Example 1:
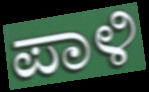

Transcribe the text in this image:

ಪಾಳಿ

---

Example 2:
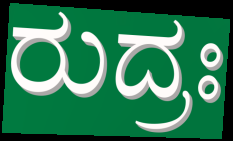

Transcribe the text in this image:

ರುದ್ರಃ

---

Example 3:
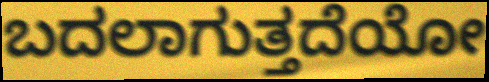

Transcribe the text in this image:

ಬದಲಾಗುತ್ತದೆಯೋ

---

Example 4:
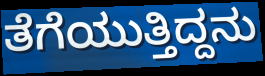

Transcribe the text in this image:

ತೆಗೆಯುತ್ತಿದ್ದನು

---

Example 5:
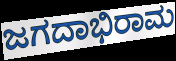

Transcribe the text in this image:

ಜಗದಾಭಿರಾಮ